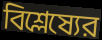
বিশ্লেষ্যের